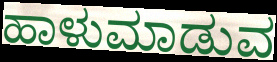
ಹಾಳುಮಾಡುವ